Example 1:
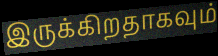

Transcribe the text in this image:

இருக்கிறதாகவும்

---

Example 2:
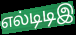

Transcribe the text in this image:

எல்டிடிஇ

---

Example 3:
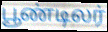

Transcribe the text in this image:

பூண்டிலர்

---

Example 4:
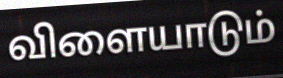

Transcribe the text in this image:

விளையாடும்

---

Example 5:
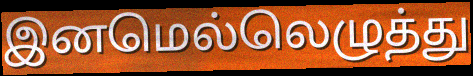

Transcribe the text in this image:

இனமெல்லெழுத்து